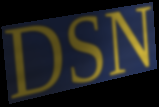
DSN